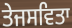
ਤੇਜਸਵਿਤਾ